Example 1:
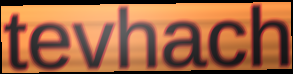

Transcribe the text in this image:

tevhach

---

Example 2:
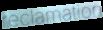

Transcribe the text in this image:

reclamation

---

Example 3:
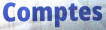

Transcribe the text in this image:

Comptes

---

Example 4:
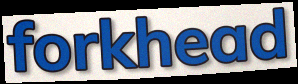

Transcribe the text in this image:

forkhead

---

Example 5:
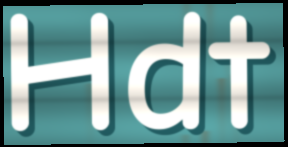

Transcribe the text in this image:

Hdt